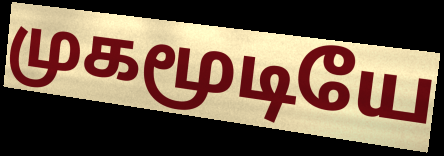
முகமூடியே